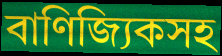
বাণিজ্যিকসহ